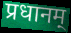
प्रधानम्